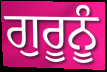
ਗੁਰੂਨੂੰ